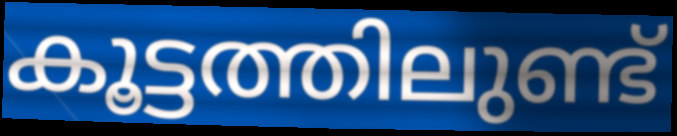
കൂട്ടത്തിലുണ്ട്